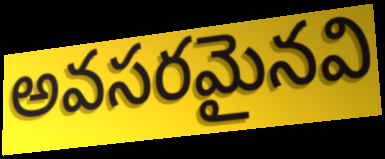
అవసరమైనవి